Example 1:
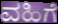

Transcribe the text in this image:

ವಹಿಗೆ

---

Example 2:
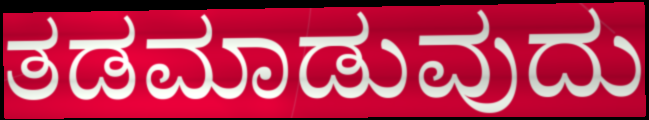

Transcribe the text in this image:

ತಡಮಾಡುವುದು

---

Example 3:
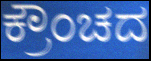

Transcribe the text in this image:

ಕ್ರೌಂಚದ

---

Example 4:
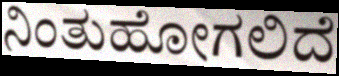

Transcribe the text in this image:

ನಿಂತುಹೋಗಲಿದೆ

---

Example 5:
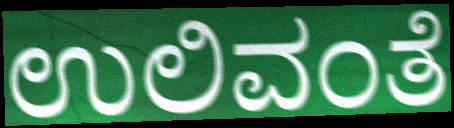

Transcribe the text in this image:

ಉಲಿವಂತೆ